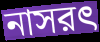
নাসরৎ